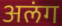
अलंग